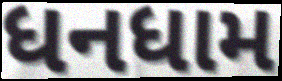
ધનધામ